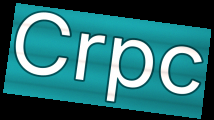
Crpc